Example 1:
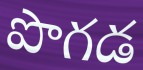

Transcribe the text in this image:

పొగడ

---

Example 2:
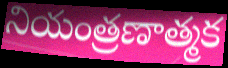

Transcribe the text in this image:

నియంత్రణాత్మక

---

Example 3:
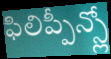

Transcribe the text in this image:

ఫిలిప్పీన్స్లో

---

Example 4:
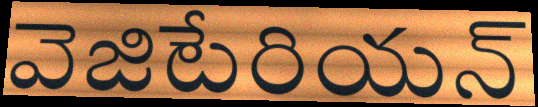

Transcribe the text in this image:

వెజిటేరియన్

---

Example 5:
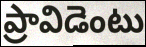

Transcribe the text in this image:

ప్రావిడెంటు